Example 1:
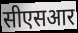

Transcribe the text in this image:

सीएसआर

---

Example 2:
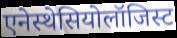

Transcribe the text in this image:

एनेस्थेसियोलॉजिस्ट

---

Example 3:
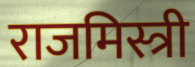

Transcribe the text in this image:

राजमिस्त्री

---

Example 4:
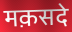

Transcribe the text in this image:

मक़सदे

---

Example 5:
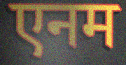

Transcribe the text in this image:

एनम